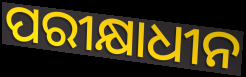
ପରୀକ୍ଷାଧୀନ